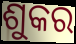
ଶୁକର